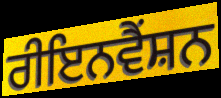
ਰੀਇਨਵੈਂਸ਼ਨ